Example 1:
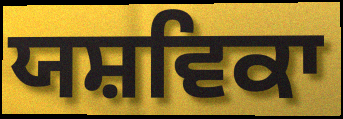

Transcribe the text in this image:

ਯਸ਼ਵਿਕਾ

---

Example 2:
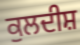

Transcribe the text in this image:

ਕੁਲਦੀਸ਼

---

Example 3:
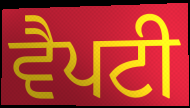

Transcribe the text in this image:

ਵੈਪਟੀ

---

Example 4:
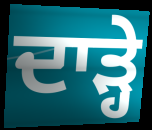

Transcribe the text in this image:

ਦਾੜ੍ਹੇ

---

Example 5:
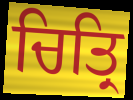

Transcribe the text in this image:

ਚਿਤ੍ਰਿ